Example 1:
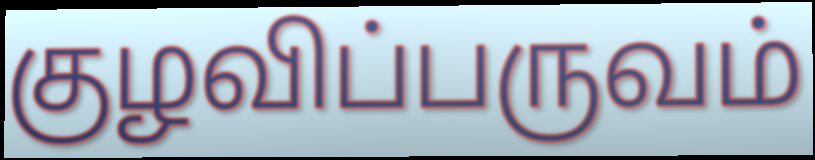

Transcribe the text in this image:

குழவிப்பருவம்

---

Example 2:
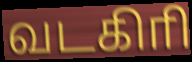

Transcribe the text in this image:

வடகிரி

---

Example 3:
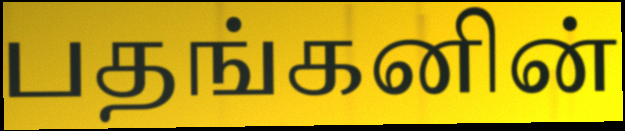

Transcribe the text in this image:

பதங்கனின்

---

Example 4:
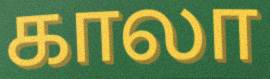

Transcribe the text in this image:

காலா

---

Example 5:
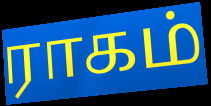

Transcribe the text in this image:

ராகம்